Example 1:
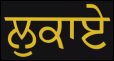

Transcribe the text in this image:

ਲੁਕਾਏ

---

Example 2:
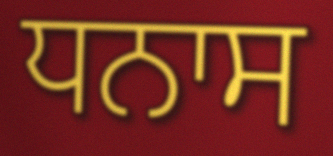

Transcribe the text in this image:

ਧਨਾਸ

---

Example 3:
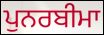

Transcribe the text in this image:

ਪੁਨਰਬੀਮਾ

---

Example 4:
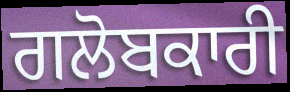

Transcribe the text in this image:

ਗਲੋਬਕਾਰੀ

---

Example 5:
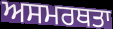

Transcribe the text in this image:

ਅਸਮਰਥਤਾ